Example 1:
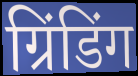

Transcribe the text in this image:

ग्रिंडिंग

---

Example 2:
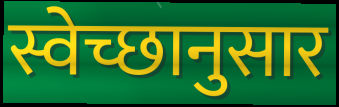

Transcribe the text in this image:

स्वेच्छानुसार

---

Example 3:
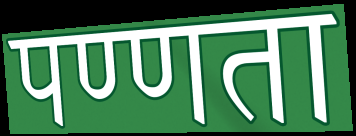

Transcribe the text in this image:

पण्णता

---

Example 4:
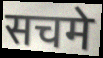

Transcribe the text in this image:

सचमे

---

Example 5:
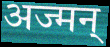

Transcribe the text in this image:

अज्मन्